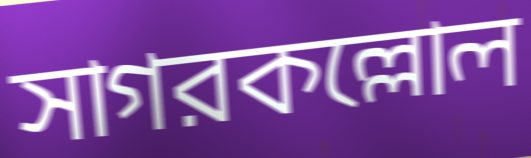
সাগরকল্লোল